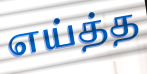
எய்த்த